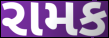
રામક